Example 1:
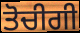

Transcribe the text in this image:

ਤੋਚੀਗੀ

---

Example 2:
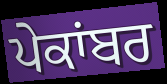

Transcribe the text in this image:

ਪੇਕਾਂਬਰ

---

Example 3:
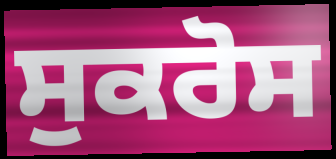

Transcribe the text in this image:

ਸੁਕਰੋਸ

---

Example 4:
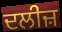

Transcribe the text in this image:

ਦਲੀਜ਼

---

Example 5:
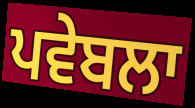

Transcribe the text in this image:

ਪਵੇਬਲਾ